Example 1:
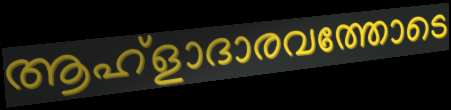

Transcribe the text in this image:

ആഹ്ളാദാരവത്തോടെ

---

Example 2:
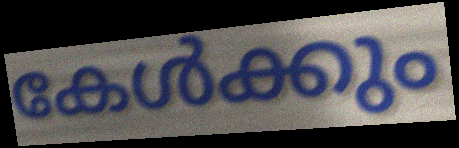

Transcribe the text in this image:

കേൾക്കും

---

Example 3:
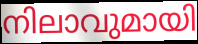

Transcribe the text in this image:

നിലാവുമായി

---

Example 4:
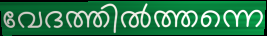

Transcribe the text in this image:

വേദത്തിൽത്തന്നെ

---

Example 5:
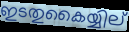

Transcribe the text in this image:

ഇടതുകൈയ്യില്